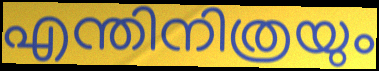
എന്തിനിത്രയും